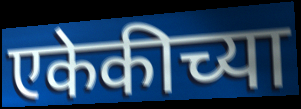
एकेकीच्या